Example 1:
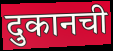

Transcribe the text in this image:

दुकानची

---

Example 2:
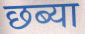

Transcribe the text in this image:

छब्या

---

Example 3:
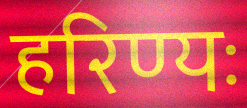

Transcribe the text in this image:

हरिण्यः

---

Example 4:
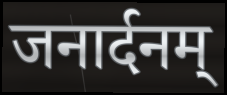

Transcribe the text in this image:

जनार्दनम्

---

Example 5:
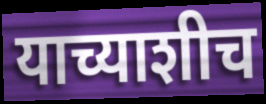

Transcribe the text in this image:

याच्याशीच